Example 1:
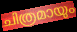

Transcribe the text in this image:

ചിത്രമായും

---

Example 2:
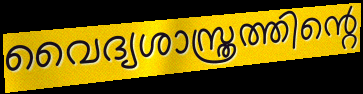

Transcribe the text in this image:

വൈദ്യശാസ്ത്രത്തിന്റെ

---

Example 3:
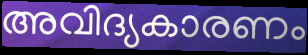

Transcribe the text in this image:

അവിദ്യകാരണം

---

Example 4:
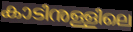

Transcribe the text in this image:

കാടിനുള്ളിലെ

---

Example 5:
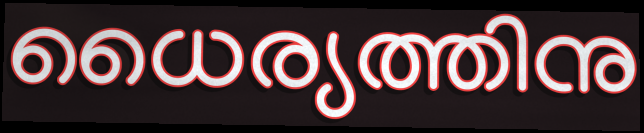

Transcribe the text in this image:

ധൈര്യത്തിനു